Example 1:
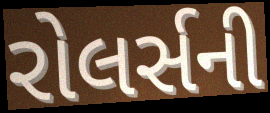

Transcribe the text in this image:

રોલર્સની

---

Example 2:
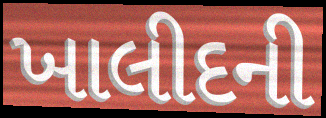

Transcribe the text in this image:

ખાલીદની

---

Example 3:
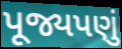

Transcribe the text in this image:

પૂજ્યપણું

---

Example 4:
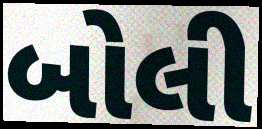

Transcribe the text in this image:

બોલી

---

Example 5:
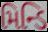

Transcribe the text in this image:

મિન્ડિ